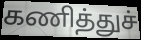
கணித்துச்